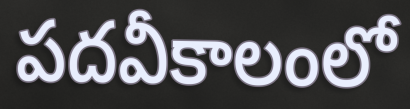
పదవీకాలంలో